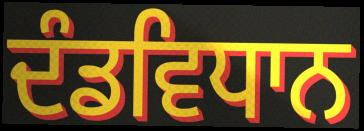
ਦੰਡਵਿਧਾਨ